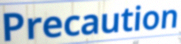
Precaution